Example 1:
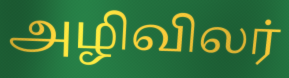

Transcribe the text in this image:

அழிவிலர்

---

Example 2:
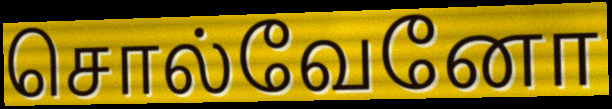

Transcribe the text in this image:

சொல்வேனோ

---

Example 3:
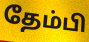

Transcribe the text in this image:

தேம்பி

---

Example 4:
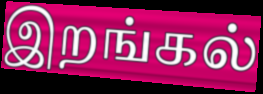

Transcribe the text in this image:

இறங்கல்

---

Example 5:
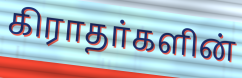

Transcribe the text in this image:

கிராதர்களின்